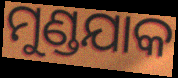
ମୁଣ୍ଡଯାକ